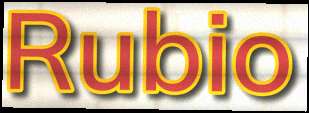
Rubio